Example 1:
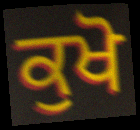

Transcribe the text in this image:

ਕੁਖੋ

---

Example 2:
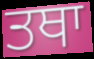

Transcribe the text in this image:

ਤਥਾ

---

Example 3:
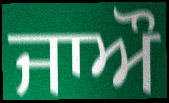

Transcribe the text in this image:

ਜਾਔ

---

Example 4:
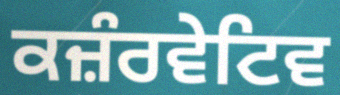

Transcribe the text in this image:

ਕਜ਼ੰਰਵੇਟਿਵ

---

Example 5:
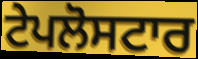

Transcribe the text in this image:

ਟੇਪਲੋਸਟਾਰ